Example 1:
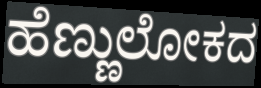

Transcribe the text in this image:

ಹೆಣ್ಣುಲೋಕದ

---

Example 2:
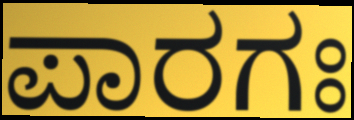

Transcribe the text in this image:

ಪಾರಗಃ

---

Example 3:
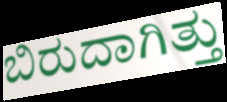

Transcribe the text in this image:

ಬಿರುದಾಗಿತ್ತು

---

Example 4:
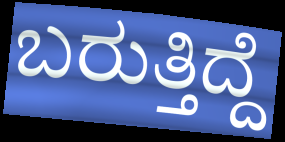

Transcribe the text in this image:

ಬರುತ್ತಿದ್ದೆ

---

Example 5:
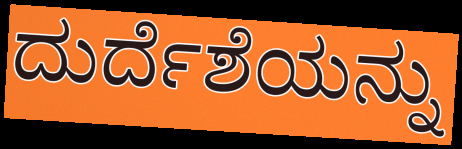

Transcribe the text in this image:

ದುರ್ದೆಶೆಯನ್ನು